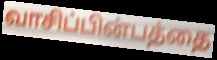
வாசிப்பின்பத்தை